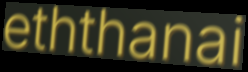
eththanai